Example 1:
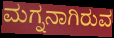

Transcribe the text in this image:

ಮಗ್ನನಾಗಿರುವ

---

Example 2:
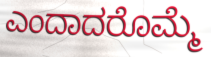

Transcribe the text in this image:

ಎಂದಾದರೊಮ್ಮೆ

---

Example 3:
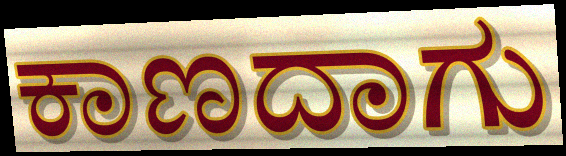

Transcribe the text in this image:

ಕಾಣದಾಗು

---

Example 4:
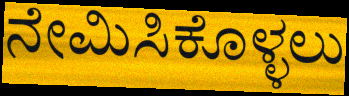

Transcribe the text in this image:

ನೇಮಿಸಿಕೊಳ್ಳಲು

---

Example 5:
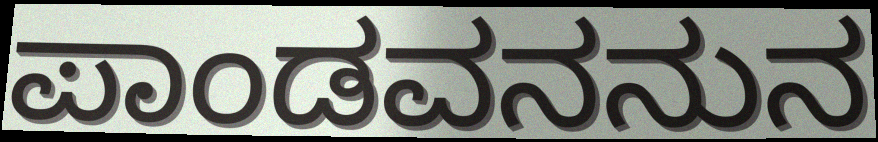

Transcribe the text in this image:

ಪಾಂಡವನನುನ